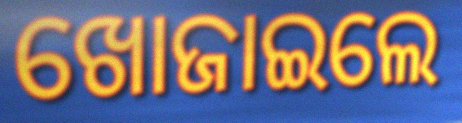
ଖୋଜାଇଲେ